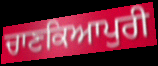
ਚਾਣਕਿਆਪੁਰੀ